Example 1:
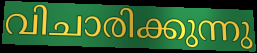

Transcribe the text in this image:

വിചാരിക്കുന്നു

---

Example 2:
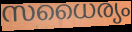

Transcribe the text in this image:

സധൈര്യം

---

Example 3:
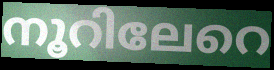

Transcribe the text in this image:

നൂറിലേറെ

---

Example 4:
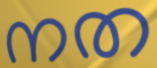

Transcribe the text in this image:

നത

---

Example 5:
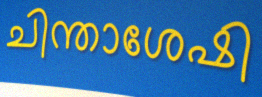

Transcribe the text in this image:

ചിന്താശേഷി